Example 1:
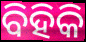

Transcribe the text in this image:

ବିହିକି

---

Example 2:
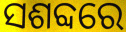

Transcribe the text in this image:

ସଶବ୍ଦରେ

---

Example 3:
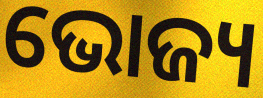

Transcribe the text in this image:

ଭୋଜ୍ୟ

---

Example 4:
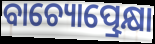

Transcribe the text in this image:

ବାଚ୍ୟୋତ୍ପ୍ରେକ୍ଷା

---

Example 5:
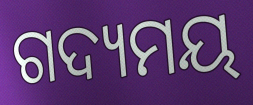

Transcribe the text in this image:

ଗଦ୍ୟମୟ